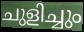
ചുളിച്ചും